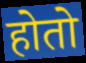
होतो